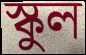
স্কুল